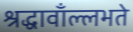
श्रद्धावाँल्लभते